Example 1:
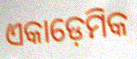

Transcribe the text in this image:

ଏକାଡ଼େମିକ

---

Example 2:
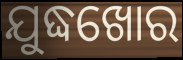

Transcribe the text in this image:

ଯୁଦ୍ଧଖୋର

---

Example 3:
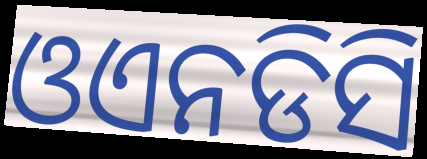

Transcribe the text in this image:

ଓଏନଡିସି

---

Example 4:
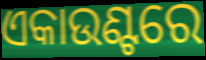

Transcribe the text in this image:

ଏକାଉଣ୍ଟରେ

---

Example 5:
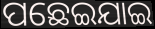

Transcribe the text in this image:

ପଛେଇଯାଇ